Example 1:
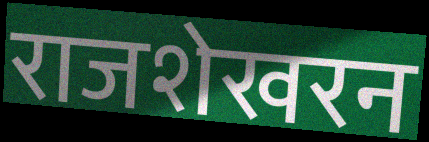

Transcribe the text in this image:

राजशेखरन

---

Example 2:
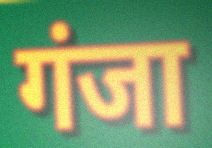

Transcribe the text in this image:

गंजा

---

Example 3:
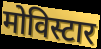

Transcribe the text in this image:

मोविस्टार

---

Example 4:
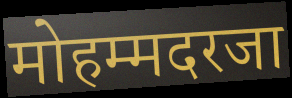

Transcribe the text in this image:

मोहम्मदरजा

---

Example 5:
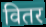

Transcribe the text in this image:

वितर